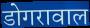
डोगरावाल